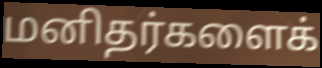
மனிதர்களைக்